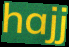
hajj